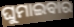
ଘୁମାଇବାର